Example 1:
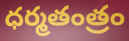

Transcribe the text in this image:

ధర్మతంత్రం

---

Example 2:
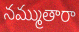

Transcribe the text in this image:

నమ్ముతారా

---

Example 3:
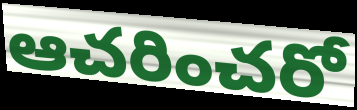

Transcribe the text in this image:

ఆచరించరో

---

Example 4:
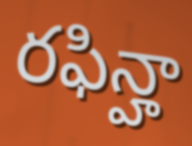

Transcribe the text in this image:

రఫిన్హా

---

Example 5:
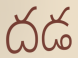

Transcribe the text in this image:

దడ